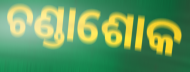
ଚଣ୍ଡାଶୋକ